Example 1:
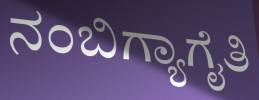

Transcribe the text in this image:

ನಂಬಿಗ್ಯಾಗೈತಿ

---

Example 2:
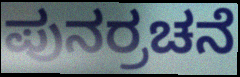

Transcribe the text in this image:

ಪುನರ್ರಚನೆ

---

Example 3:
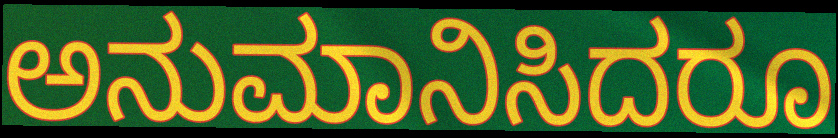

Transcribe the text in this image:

ಅನುಮಾನಿಸಿದರೂ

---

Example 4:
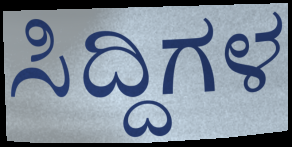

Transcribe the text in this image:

ಸಿದ್ದಿಗಳ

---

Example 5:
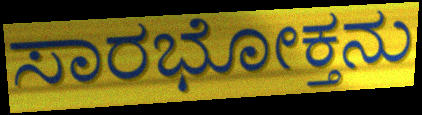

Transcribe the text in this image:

ಸಾರಭೋಕ್ತನು